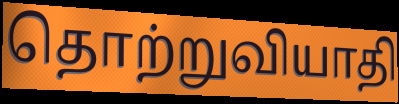
தொற்றுவியாதி